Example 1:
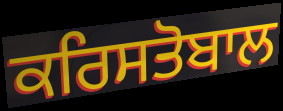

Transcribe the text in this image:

ਕਰਿਸਤੋਬਾਲ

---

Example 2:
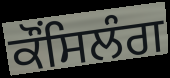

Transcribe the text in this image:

ਕੌਂਸਿਲੰਗ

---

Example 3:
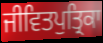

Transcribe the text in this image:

ਜੀਵਿਤਪੁਤ੍ਰਿਕਾ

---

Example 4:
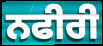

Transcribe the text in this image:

ਨਫੀਰੀ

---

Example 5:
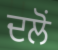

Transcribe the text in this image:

ਦਲੋਂ